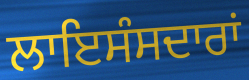
ਲਾਇਸੰਸਦਾਰਾਂ